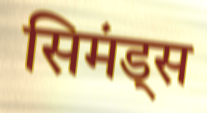
सिमंड्स